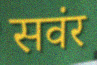
सवंर